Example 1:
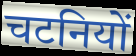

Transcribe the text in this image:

चटनियों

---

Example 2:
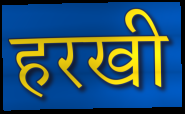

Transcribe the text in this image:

हरखी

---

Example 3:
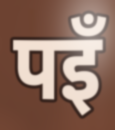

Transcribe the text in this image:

पइँ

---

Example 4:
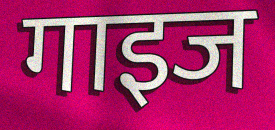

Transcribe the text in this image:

गाइज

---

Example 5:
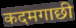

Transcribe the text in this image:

कदमगाछी